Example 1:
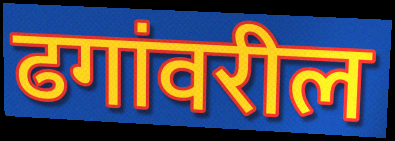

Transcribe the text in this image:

ढगांवरील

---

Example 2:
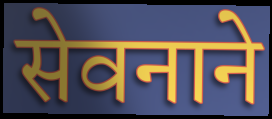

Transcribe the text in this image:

सेवनाने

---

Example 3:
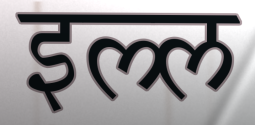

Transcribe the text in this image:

इल्ल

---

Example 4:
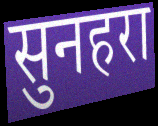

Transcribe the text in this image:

सुनहरा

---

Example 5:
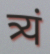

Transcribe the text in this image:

त्र्यं